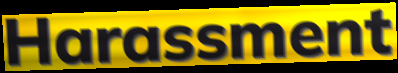
Harassment